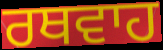
ਰਥਵਾਹ